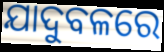
ଯାଦୁବଳରେ